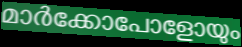
മാർക്കോപോളോയും